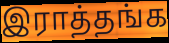
இராத்தங்க